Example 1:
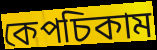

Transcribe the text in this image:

কেপচিকাম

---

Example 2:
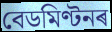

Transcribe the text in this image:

বেডমিণ্টনৰ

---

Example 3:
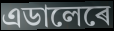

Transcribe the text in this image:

এডালেৰে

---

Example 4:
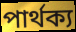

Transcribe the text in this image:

পাৰ্থক্য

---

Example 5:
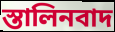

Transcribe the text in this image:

স্তালিনবাদ